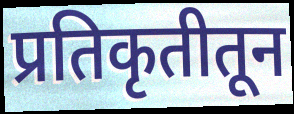
प्रतिकृतीतून